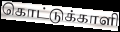
கொட்டுக்காளி